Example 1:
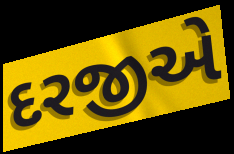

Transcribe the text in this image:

દરજીએ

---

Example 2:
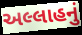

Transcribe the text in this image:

અલ્લાહનું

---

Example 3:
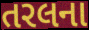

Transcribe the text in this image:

તરલના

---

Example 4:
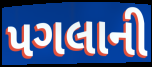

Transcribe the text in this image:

પગલાની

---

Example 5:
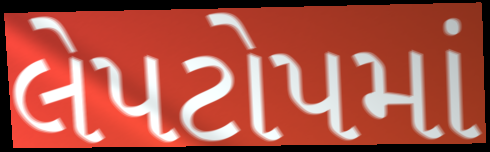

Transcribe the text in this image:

લેપટોપમાં